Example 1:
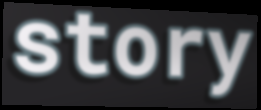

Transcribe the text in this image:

story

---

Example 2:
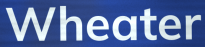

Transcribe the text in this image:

Wheater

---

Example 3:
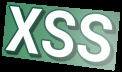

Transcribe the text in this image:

XSS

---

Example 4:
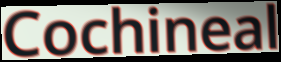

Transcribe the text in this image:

Cochineal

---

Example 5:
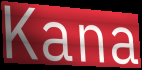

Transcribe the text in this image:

Kana